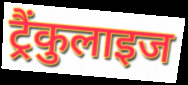
ट्रैंकुलाइज